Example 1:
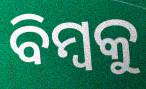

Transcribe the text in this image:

ବିମ୍ବକୁ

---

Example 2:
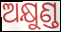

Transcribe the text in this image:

ଅକ୍ଷୁଣ୍ଡ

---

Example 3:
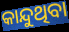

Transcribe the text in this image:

କାନ୍ଦୁଥିବା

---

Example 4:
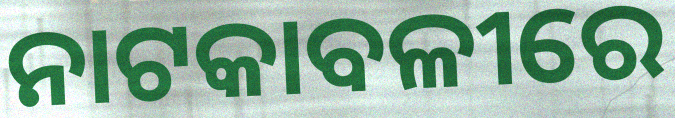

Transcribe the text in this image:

ନାଟକାବଳୀରେ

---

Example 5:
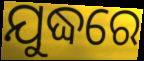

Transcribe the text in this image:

ଯୁଦ୍ଧରେ